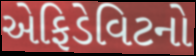
એફિડેવિટનો